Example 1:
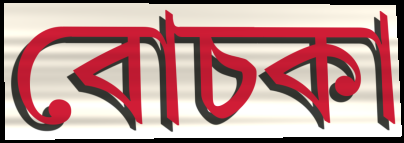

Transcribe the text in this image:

বোচকা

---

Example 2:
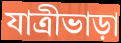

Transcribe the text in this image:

যাত্রীভাড়া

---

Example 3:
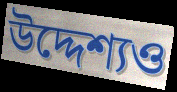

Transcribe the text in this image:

উদ্দেশ্যও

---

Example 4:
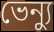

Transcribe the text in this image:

ভেন্যু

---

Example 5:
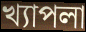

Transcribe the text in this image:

খ্যাপলা